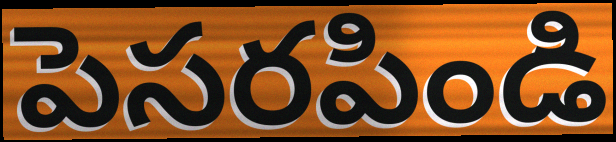
పెసరపిండి